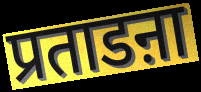
प्रताडऩा